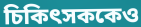
চিকিৎসককেও